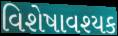
વિશેષાવશ્યક